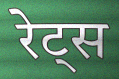
रेट्स